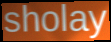
sholay